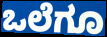
ಒಲೆಗೂ